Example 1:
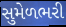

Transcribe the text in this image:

સુમેળભરી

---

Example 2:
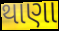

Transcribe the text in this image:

થાણા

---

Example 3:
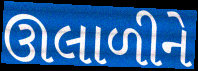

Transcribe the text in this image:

ઊલાળીને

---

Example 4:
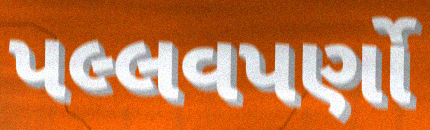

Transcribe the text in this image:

પલ્લવપર્ણો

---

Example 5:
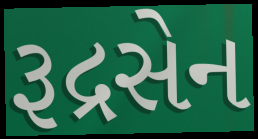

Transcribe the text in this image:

રૂદ્રસેન